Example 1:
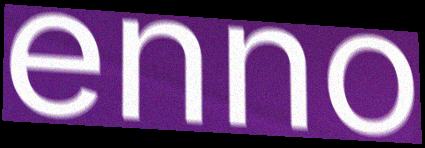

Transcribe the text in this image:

enno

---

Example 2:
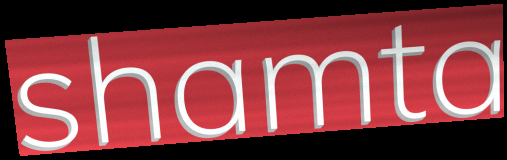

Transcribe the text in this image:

shamta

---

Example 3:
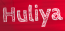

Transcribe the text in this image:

Huliya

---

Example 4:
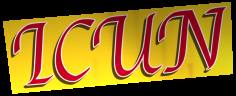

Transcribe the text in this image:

ICUN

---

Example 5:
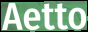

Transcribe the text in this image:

Aetto